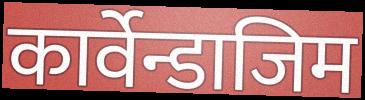
कार्वेन्डाजिम